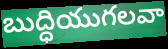
బుద్ధియుగలవా